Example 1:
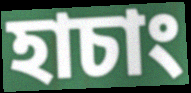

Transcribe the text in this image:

হাচাং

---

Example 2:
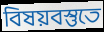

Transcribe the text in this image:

বিষয়বস্তুতে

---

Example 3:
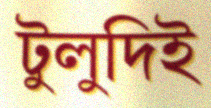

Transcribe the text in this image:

টুলুদিই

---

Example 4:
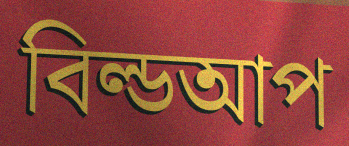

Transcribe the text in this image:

বিল্ডআপ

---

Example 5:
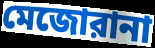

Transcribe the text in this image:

মেজোরানা